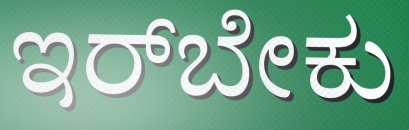
ಇರ್‌ಬೇಕು